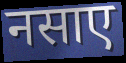
नसाए